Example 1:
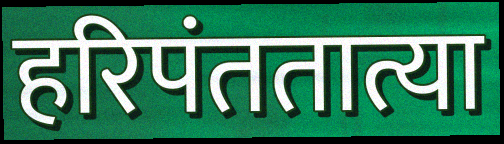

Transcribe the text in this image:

हरिपंततात्या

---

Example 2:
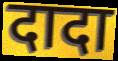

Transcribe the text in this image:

दादा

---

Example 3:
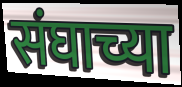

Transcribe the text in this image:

संघाच्या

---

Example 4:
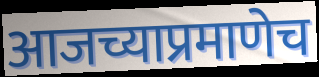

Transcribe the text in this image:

आजच्याप्रमाणेच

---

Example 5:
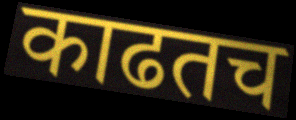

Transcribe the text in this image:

काढतच